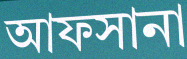
আফসানা